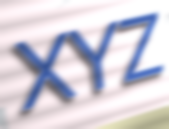
XYZ